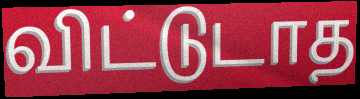
விட்டுடாத